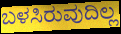
ಬಳಸಿರುವುದಿಲ್ಲ